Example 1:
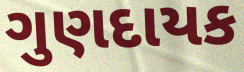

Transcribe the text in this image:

ગુણદાયક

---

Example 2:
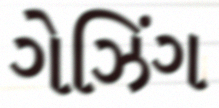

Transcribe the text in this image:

ગેઝિંગ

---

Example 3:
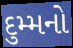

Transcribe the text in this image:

દુમ્મનો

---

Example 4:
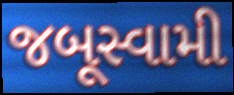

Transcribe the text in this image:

જબૂસ્વામી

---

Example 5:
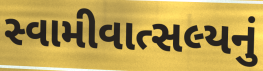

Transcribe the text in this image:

સ્વામીવાત્સલ્યનું